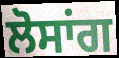
ਲੋਸਾਂਗ